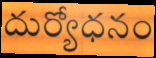
దుర్యోధనం